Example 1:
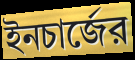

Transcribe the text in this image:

ইনচার্জের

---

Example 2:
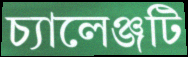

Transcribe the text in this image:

চ্যালেঞ্জটি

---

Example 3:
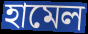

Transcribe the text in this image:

হামেল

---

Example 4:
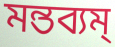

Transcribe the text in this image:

মন্তব্যম্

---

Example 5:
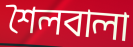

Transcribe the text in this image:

শৈলবালা